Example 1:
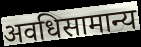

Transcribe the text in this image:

अवधिसामान्य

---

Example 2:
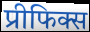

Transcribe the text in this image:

प्रीफिक्स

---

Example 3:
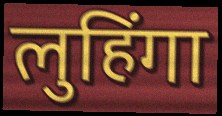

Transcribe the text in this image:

लुहिंगा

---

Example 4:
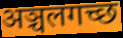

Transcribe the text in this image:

अञ्चलगच्छ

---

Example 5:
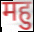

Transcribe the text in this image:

महु